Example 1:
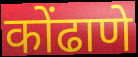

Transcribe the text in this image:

कोंढाणे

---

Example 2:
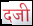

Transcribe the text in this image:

दजी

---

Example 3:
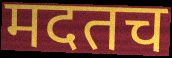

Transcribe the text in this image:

मदतच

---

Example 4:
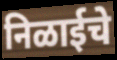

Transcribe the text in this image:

निळाईचे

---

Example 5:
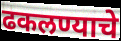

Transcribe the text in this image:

ढकलण्याचे